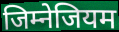
जिम्नेजियम